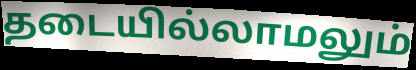
தடையில்லாமலும்